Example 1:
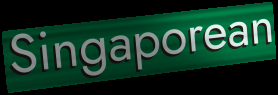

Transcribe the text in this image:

Singaporean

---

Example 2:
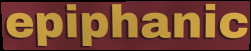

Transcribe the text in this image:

epiphanic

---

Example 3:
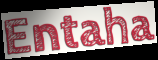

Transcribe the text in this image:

Entaha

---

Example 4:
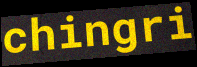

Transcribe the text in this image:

chingri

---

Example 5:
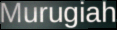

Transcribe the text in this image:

Murugiah